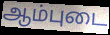
ஆம்புடை